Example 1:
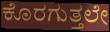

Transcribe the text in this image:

ಕೊರಗುತ್ತಲೇ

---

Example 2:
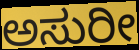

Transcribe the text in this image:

ಅಸುರೀ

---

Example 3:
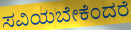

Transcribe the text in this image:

ಸವಿಯಬೇಕೆಂದರೆ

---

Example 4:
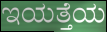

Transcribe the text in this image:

ಇಯತ್ತೆಯ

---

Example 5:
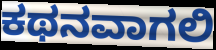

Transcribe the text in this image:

ಕಥನವಾಗಲಿ